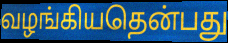
வழங்கியதென்பது